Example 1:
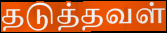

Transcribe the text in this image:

தடுத்தவள்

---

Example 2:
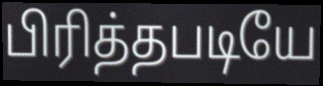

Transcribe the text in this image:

பிரித்தபடியே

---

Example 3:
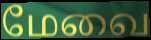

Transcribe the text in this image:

மேவை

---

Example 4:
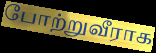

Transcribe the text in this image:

போற்றுவீராக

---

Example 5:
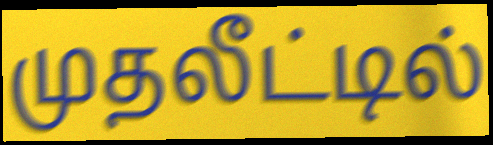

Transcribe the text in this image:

முதலீட்டில்